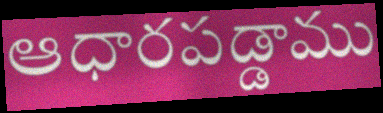
ఆధారపడ్డాము